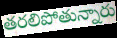
తరలిపోతున్నారు